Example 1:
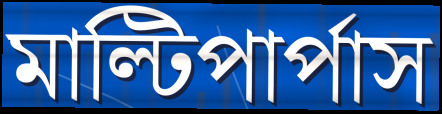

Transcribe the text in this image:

মাল্টিপার্পাস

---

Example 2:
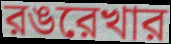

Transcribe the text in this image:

রঙরেখার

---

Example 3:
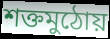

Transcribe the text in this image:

শক্তমুঠোয়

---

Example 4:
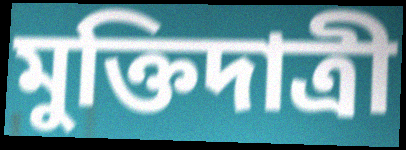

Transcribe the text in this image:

মুক্তিদাত্রী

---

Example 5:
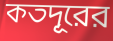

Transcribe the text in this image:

কতদূরের